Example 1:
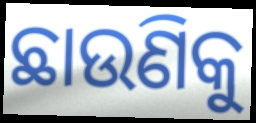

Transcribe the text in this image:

ଛାଉଣିକୁ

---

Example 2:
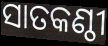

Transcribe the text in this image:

ସାତକଣ୍ଠୀ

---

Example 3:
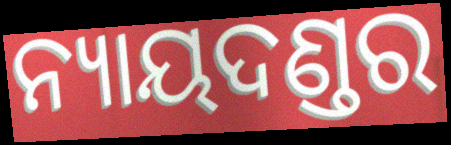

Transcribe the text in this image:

ନ୍ୟାୟଦଣ୍ଡର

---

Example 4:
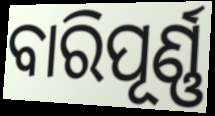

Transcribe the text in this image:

ବାରିପୂର୍ଣ୍ଣ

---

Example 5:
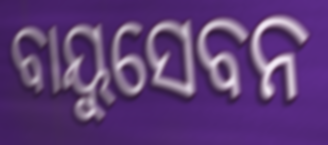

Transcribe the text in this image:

ବାୟୁସେବନ